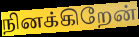
நினக்கிறேன்